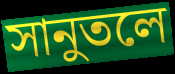
সানুতলে